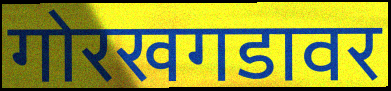
गोरखगडावर